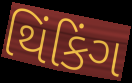
થિંકિંગ